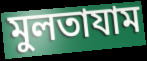
মুলতাযাম